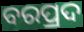
ବରପ୍ରଦ